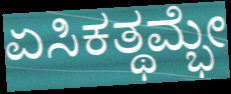
ಏಸಿಕತ್ಥಮ್ಭೇ